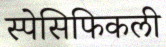
स्पेसिफिकली